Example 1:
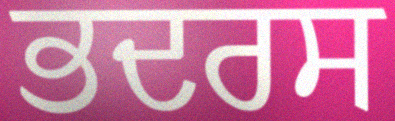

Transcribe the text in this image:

ਭਦਰਸ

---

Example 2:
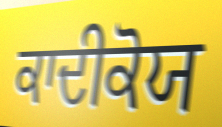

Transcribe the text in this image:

ਕਾਦੀਕੋਯ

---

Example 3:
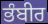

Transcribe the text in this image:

ਭੰਬੀਰ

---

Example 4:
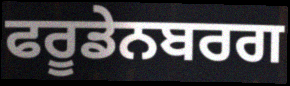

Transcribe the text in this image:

ਫਰੂਡੇਨਬਰਗ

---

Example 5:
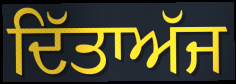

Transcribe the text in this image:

ਦਿੱਤਾਅੱਜ